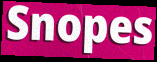
Snopes